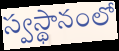
స్వస్థానంలో